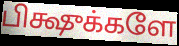
பிக்ஷுக்களே